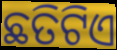
ଛତିଟିଏ